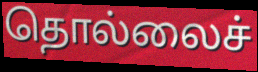
தொல்லைச்